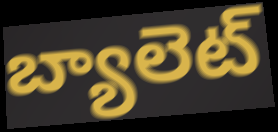
బ్యాలెట్